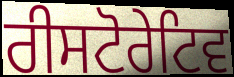
ਰੀਸਟੋਰੇਟਿਵ